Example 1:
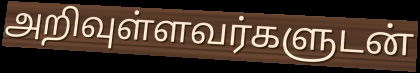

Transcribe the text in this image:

அறிவுள்ளவர்களுடன்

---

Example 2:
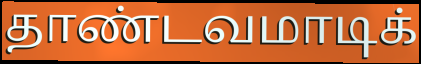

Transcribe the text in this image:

தாண்டவமாடிக்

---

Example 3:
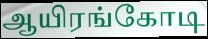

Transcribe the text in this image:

ஆயிரங்கோடி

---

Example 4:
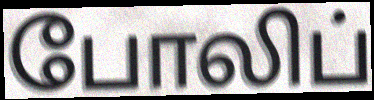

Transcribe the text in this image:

போலிப்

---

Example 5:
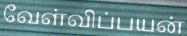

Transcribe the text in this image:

வேள்விப்பயன்